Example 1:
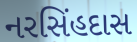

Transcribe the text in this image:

નરસિંહદાસ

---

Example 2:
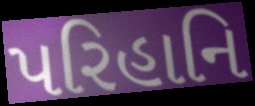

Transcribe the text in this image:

પરિહાનિ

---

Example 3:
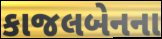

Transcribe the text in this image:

કાજલબેનના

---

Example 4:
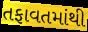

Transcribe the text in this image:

તફાવતમાંથી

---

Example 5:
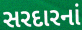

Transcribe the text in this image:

સરદારનાં